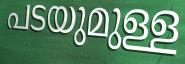
പടയുമുള്ള